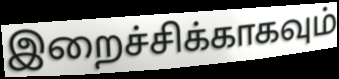
இறைச்சிக்காகவும்